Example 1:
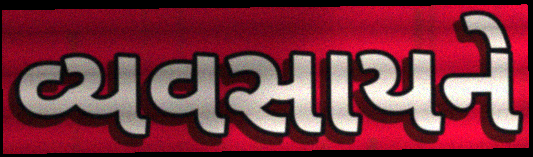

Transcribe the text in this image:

વ્યવસાયને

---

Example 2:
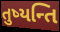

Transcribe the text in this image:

તુષ્યન્તિ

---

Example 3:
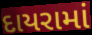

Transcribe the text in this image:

દાયરામાં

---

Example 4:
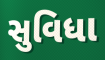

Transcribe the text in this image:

સુવિધા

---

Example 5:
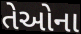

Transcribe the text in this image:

તેઓના